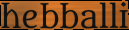
hebballi